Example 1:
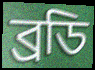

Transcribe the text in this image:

ব্রডি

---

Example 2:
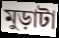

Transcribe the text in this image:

মুড়াটা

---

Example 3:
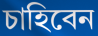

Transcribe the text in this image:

চাহিবেন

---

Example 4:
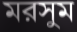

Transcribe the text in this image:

মরসুম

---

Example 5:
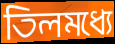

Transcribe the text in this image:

তিলমধ্যে